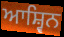
ਆਸ਼੍ਵਿਨ